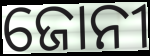
ଜୋନୀ